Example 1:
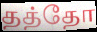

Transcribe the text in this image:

தத்தோ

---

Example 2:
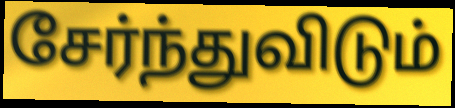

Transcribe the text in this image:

சேர்ந்துவிடும்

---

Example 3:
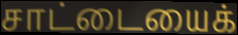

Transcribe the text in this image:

சாட்டையைக்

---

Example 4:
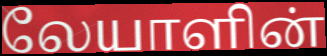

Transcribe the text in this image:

லேயாளின்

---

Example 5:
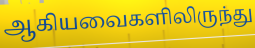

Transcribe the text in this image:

ஆகியவைகளிலிருந்து